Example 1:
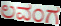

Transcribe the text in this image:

ಲವಂಗ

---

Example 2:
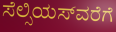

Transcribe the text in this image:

ಸೆಲ್ಸಿಯಸ್‍ವರೆಗೆ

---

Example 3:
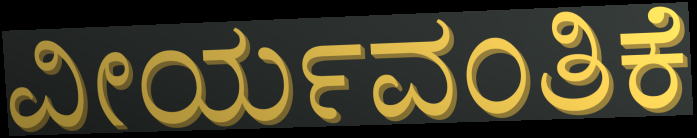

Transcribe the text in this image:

ವೀರ್ಯವಂತಿಕೆ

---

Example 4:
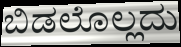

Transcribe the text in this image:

ಬಿಡಲೊಲ್ಲದು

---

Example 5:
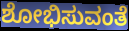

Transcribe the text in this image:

ಶೋಭಿಸುವಂತೆ